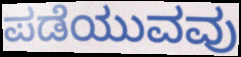
ಪಡೆಯುವವು